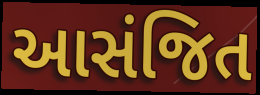
આસંજિત